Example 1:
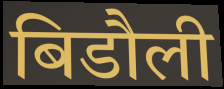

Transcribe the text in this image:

बिडौली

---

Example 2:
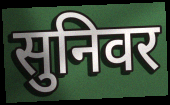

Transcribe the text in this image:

सुनिवर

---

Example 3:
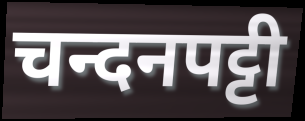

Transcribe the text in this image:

चन्दनपट्टी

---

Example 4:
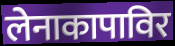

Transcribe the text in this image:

लेनाकापाविर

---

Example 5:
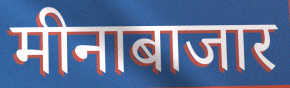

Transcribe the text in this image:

मीनाबाजार